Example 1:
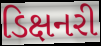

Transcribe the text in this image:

ડિક્ષનરી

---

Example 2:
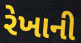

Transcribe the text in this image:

રેખાની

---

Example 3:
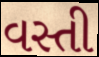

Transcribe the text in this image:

વસ્તી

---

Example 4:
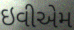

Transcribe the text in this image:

ઇવીએમ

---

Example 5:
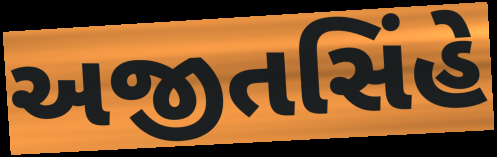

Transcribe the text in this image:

અજીતસિંહે